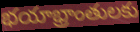
భయాభ్రాంతులకు